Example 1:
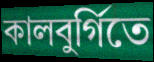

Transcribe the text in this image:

কালবুর্গিতে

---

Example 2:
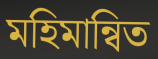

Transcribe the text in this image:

মহিমান্বিত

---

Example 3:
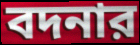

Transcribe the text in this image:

বদনার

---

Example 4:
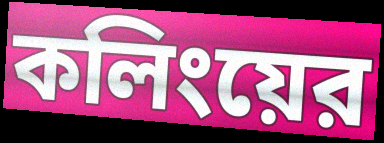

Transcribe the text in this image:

কলিংয়ের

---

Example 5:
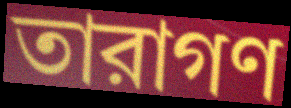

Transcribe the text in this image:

তারাগণ